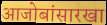
आजोबांसारखा